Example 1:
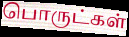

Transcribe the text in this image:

பொருட்கள்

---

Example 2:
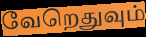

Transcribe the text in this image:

வேறெதுவும்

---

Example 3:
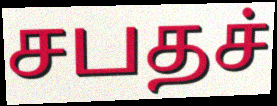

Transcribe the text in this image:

சபதச்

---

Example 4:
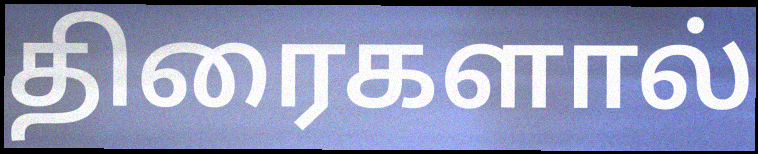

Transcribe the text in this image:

திரைகளால்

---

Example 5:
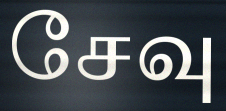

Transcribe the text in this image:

சேவு